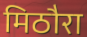
मिठौरा